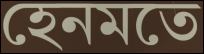
হেনমতে